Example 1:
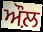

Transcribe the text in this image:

ਔਲ਼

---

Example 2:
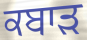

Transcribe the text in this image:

ਕਬਾਡ਼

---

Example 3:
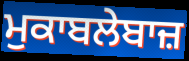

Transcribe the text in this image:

ਮੁਕਾਬਲੇਬਾਜ਼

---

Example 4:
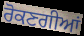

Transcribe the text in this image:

ਰੋਕਣਗੀਆਂ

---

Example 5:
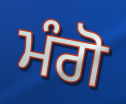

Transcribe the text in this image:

ਮੰਗੋ